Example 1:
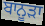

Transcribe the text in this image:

ਬਾਨੂੜਾ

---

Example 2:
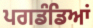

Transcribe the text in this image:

ਪਗਡੰਡਿਆਂ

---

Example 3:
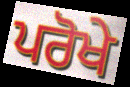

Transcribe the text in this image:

ਪਰੋਖੇ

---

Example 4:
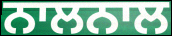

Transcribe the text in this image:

ਨਾਲਨਾਲ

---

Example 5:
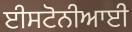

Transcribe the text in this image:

ਈਸਟੋਨੀਆਈ